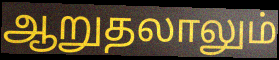
ஆறுதலாலும்